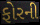
ફોરની